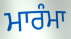
ਮਾਰੰਮਾ